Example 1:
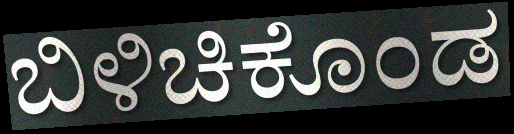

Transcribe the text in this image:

ಬಿಳಿಚಿಕೊಂಡ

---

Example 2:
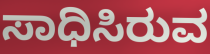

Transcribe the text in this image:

ಸಾಧಿಸಿರುವ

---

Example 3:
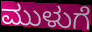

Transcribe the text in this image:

ಮುಳುಗೆ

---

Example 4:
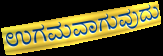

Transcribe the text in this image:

ಉಗಮವಾಗುವುದು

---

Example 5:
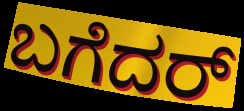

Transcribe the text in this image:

ಬಗೆದರ್